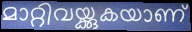
മാറ്റിവയ്ക്കുകയാണ്